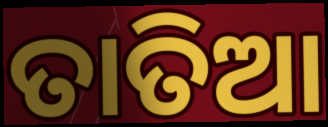
ତାତିଆ